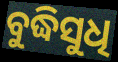
ବୁଦ୍ଧିସୁଧି